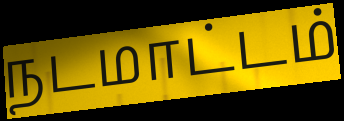
நடமாட்டம்